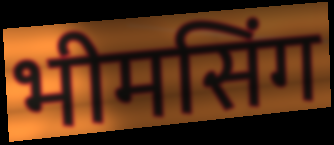
भीमसिंग